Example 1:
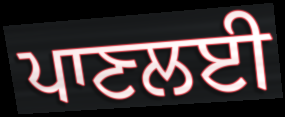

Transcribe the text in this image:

ਪਾਣਲਈ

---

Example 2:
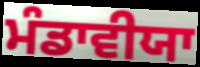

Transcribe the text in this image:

ਮੰਡਾਵੀਯਾ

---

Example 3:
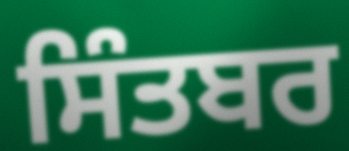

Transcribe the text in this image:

ਸਿੰਤਬਰ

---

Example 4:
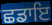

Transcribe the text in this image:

ਛਡਾਇ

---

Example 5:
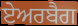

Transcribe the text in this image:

ਏਅਰਬੈਗ